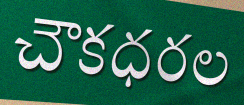
చౌకధరల